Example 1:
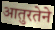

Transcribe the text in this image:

आतुरतेने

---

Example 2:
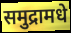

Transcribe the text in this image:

समुद्रामधे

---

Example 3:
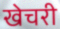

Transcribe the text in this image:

खेचरी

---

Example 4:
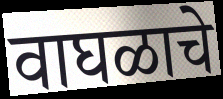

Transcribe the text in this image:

वाघळाचे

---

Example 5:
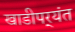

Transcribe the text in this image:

खाडीपर्यंत